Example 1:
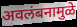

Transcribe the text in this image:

अवलंबनामुळे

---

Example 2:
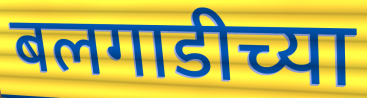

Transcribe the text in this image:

बलगाडीच्या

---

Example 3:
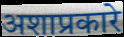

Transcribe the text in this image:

अशाप्रकारे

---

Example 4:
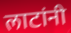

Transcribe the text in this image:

लाटांनी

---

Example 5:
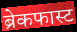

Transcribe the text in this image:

ब्रेकफास्ट